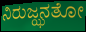
ನಿರುಜ್ಝನತೋ